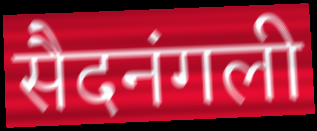
सैदनंगली